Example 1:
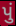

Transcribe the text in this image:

પું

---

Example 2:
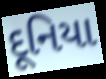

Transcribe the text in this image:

દૂનિયા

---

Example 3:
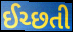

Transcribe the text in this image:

ઈચ્છતી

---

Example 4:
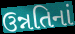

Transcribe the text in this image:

ઉન્નતિનાં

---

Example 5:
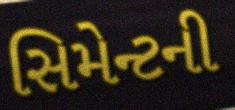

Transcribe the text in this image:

સિમેન્ટની